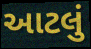
આટલું